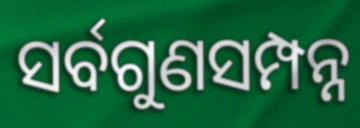
ସର୍ବଗୁଣସମ୍ପନ୍ନ